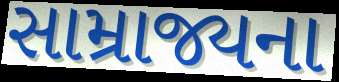
સામ્રાજ્યના